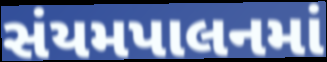
સંયમપાલનમાં